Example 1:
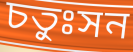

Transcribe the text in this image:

চতুঃসন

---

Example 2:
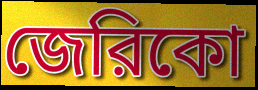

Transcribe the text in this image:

জেরিকো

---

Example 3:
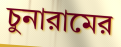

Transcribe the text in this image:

চুনারামের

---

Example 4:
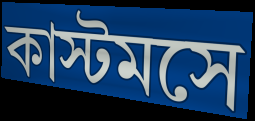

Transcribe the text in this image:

কাস্টমসে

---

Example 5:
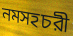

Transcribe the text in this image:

নমসহচরী